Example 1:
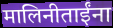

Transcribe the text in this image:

मालिनीताईंना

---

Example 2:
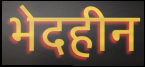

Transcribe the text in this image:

भेदहीन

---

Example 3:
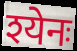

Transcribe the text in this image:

श्येनः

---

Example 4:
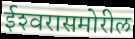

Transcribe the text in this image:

ईश्वरासमोरील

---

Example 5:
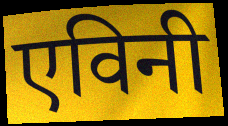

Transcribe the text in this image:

एविनी